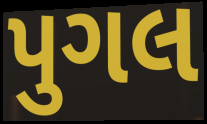
પુગલ